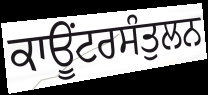
ਕਾਊਂਟਰਸੰਤੁਲਨ